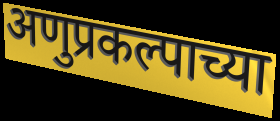
अणुप्रकल्पाच्या